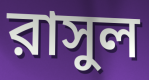
রাসুল